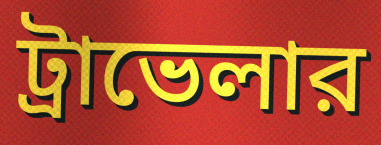
ট্রাভেলার